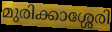
മുരിക്കാശ്ശേരി